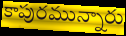
కాపురమున్నారు